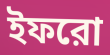
ইফরো